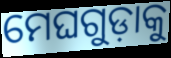
ମେଘଗୁଡ଼ାକୁ